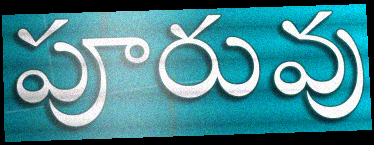
పూరువు